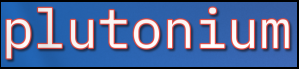
plutonium